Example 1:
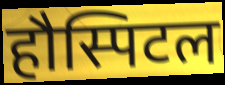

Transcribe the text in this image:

हौस्पिटल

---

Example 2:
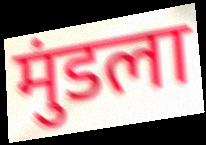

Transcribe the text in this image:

मुंडला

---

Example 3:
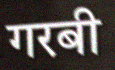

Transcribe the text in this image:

गरबी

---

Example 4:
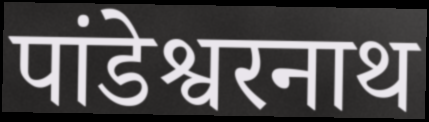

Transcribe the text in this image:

पांडेश्वरनाथ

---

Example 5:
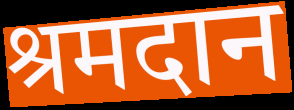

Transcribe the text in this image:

श्रमदान